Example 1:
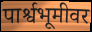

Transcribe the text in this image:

पार्श्वभूमीवर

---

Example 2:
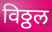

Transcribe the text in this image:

विठ्ठल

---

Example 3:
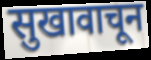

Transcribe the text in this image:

सुखावाचून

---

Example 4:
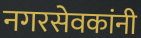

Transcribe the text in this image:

नगरसेवकांनी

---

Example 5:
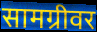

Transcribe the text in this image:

सामग्रीवर